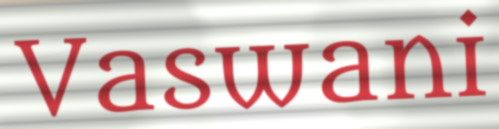
Vaswani